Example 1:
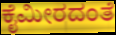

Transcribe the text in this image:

ಕೈಮೀರದಂತೆ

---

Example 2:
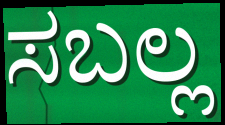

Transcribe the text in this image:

ಸಬಲ್ಲ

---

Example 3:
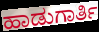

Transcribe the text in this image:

ಹಾಡುಗಾರ್ತಿ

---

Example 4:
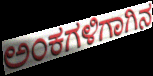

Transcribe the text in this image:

ಅಂಕಗಳಿಗಾಗಿನ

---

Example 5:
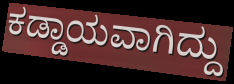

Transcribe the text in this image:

ಕಡ್ಡಾಯವಾಗಿದ್ದು